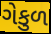
ગેકુળ